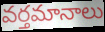
వర్తమానాలు